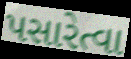
પસારેત્વા